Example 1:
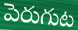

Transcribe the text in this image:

పెరుగుట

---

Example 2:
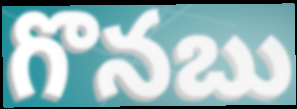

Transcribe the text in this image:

గొనబు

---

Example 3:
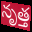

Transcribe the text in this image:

నృత్త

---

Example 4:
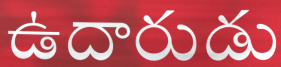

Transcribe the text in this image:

ఉదారుడు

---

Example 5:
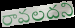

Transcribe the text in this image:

రావలదని